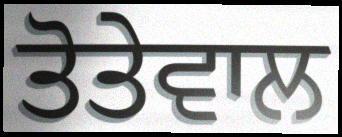
ਤੋਤੇਵਾਲ